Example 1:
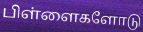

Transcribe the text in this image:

பிள்ளைகளோடு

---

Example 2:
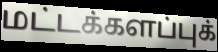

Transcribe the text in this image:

மட்டக்களப்புக்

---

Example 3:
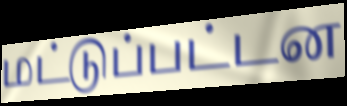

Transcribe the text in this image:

மட்டுப்பட்டன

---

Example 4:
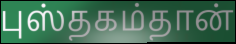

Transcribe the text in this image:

புஸ்தகம்தான்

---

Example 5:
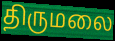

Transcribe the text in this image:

திருமலை